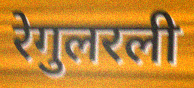
रेगुलरली